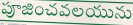
పూజించవలయును